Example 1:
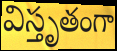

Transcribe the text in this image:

విస్తృతంగా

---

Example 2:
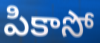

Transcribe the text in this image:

పికాసో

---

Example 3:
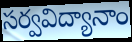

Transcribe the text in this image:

సర్వవిద్యానాం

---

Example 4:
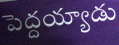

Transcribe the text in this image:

పెద్దయ్యాడు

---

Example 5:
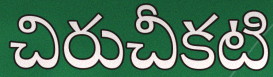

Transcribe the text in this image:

చిరుచీకటి